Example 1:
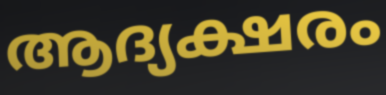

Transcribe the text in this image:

ആദ്യക്ഷരം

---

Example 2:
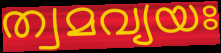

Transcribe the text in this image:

ത്വമവ്യയഃ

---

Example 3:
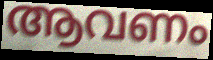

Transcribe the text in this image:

ആവണം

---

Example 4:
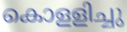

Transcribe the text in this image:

കൊളളിച്ചു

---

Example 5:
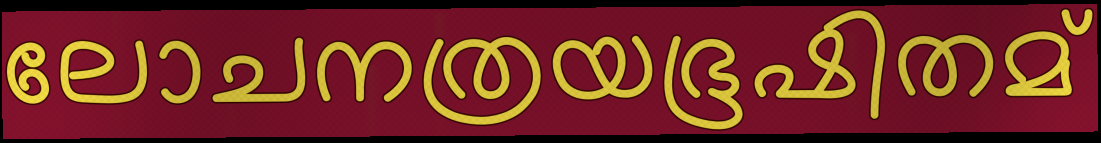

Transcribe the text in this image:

ലോചനത്രയഭൂഷിതമ്